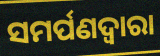
ସମର୍ପଣଦ୍ୱାରା